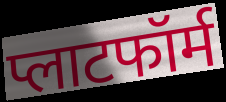
प्लाटफॉर्म